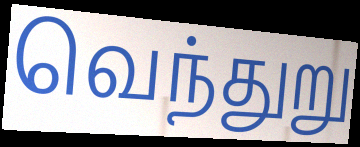
வெந்துறு